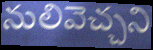
నులివెచ్చని